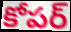
కోపర్